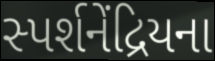
સ્પર્શનેંદ્રિયના